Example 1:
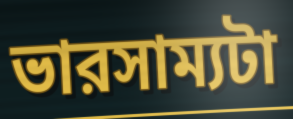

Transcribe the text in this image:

ভারসাম্যটা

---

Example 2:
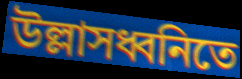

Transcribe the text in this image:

উল্লাসধ্বনিতে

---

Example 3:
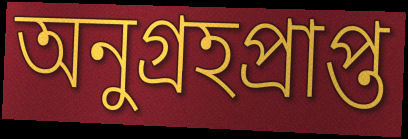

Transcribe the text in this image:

অনুগ্রহপ্রাপ্ত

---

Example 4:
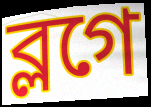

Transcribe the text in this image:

ব্লগে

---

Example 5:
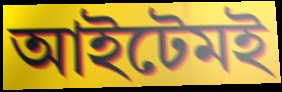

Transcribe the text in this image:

আইটেমই